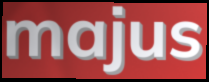
majus